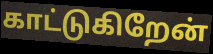
காட்டுகிறேன்